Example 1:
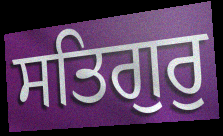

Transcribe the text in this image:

ਸਤਿਗੁਰੁ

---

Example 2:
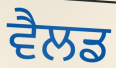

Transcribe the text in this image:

ਵੈਲਡ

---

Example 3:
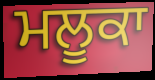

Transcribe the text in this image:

ਮਲੂਕਾ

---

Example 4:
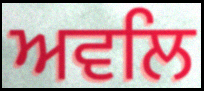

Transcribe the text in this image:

ਅਵਲਿ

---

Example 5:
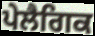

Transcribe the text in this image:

ਪੇਲੈਗਿਕ